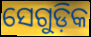
ସେଗୁଡ଼ିକ